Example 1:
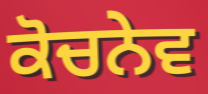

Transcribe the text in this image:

ਕੋਚਨੇਵ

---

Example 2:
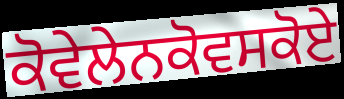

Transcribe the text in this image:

ਕੋਵੇਲੇਨਕੋਵਸਕੋਏ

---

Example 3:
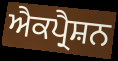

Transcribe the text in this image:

ਐਕਪ੍ਰੈਸ਼ਨ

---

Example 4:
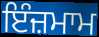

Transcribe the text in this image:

ਇੰਜ਼ਮਾਮ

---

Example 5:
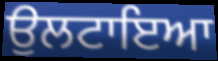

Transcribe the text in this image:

ਉਲਟਾਇਆ